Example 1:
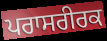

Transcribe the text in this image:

ਪਰਾਸਰੀਰਕ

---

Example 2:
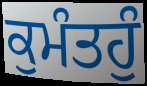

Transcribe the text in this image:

ਕੁਮੰਤਹੁੰ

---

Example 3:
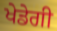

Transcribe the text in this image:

ਖੇਡੇਗੀ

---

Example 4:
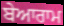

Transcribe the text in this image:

ਬੇਆਰਾਮ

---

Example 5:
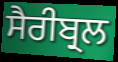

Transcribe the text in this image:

ਸੈਰੀਬ੍ਰਲ